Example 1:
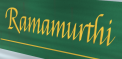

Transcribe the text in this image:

Ramamurthi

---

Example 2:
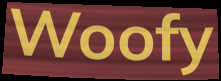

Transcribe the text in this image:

Woofy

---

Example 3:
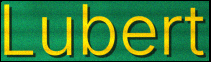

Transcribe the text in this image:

Lubert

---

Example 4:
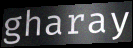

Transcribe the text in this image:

gharay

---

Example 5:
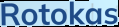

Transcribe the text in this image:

Rotokas